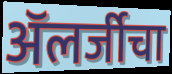
ॲलर्जीचा